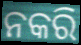
ନକରି